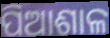
ପିଆଶାଳ